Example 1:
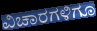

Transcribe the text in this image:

ವಿಚಾರಗಳಿಗೂ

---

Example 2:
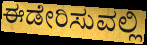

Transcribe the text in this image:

ಈಡೇರಿಸುವಲ್ಲಿ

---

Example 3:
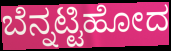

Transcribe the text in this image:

ಬೆನ್ನಟ್ಟಿಹೋದ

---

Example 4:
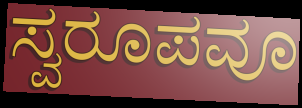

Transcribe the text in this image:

ಸ್ವರೂಪವೂ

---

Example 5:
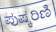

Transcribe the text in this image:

ಪುಷ್ಕರಿಣಿ